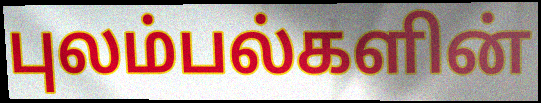
புலம்பல்களின்